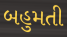
બહુમતી